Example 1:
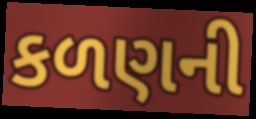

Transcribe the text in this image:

કળણની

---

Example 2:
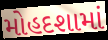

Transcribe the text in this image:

મોહદશામાં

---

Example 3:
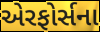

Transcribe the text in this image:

એરફોર્સના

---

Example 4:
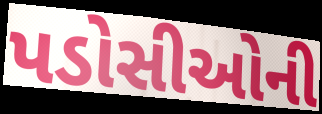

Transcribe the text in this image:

પડોસીઓની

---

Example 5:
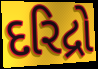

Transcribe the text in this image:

દરિદ્રો